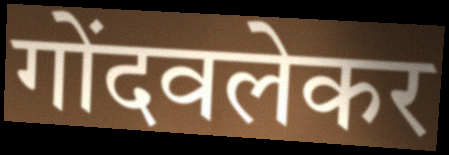
गोंदवलेकर